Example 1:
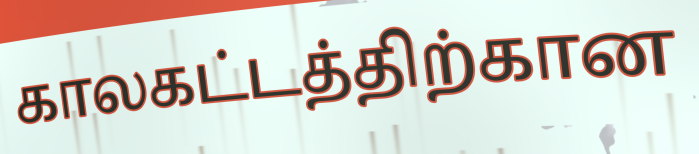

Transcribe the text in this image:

காலகட்டத்திற்கான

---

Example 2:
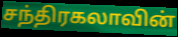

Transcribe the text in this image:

சந்திரகலாவின்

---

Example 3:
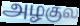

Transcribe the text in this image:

அழகுல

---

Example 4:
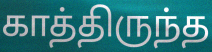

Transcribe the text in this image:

காத்திருந்த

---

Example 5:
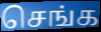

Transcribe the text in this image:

செங்க